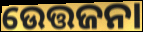
ଉେତ୍ତଜନା